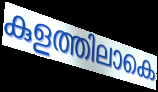
കുളത്തിലാകെ